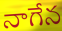
నాగేన